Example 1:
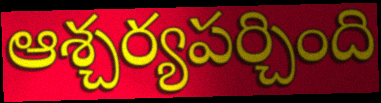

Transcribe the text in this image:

ఆశ్చర్యపర్చింది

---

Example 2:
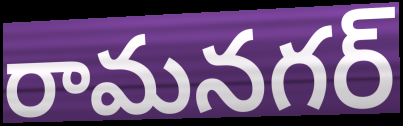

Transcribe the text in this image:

రామనగర్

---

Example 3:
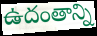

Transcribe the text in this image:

ఉదంతాన్ని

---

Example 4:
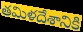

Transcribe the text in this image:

తమిళదేశానికి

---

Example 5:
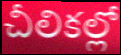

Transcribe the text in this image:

చీలికల్లో